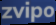
zvipo